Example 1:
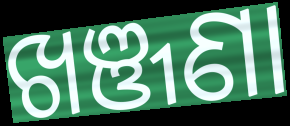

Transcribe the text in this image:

ଖଞ୍ଜଣା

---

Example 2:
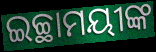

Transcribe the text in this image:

ଇଚ୍ଛାମୟୀଙ୍କ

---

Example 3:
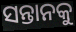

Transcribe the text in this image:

ସନ୍ତାନକୁ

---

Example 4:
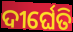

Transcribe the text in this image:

ଦୀର୍ଘେତି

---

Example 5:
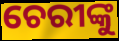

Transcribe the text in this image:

ଚେରୀଙ୍କୁ